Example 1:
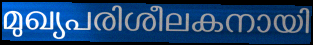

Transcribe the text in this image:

മുഖ്യപരിശീലകനായി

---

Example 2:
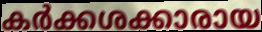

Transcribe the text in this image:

കർക്കശക്കാരായ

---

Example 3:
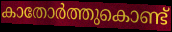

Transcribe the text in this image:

കാതോർത്തുകൊണ്ട്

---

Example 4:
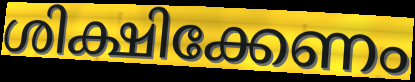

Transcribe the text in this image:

ശിക്ഷിക്കേണം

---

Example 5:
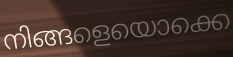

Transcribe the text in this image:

നിങ്ങളെയൊക്കെ